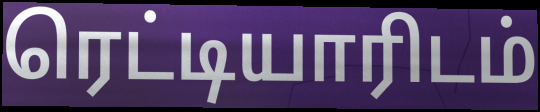
ரெட்டியாரிடம்